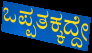
ಒಪ್ಪತಕ್ಕದ್ದೇ